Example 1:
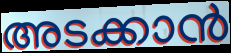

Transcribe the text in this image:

അടക്കാൻ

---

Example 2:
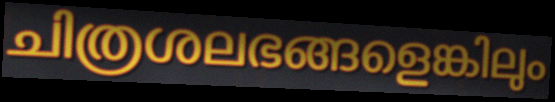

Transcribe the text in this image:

ചിത്രശലഭങ്ങളെങ്കിലും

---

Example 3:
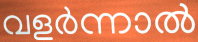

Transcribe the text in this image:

വളർന്നാൽ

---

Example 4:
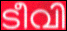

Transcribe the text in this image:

ടീവി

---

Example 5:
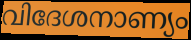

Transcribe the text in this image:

വിദേശനാണ്യം